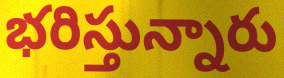
భరిస్తున్నారు